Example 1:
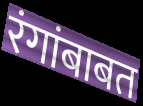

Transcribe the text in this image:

रंगांबाबत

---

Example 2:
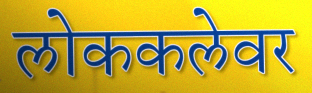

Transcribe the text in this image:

लोककलेवर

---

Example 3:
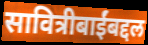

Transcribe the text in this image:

सावित्रीबाईंबद्दल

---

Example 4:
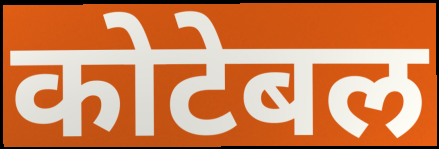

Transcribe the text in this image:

कोटेबल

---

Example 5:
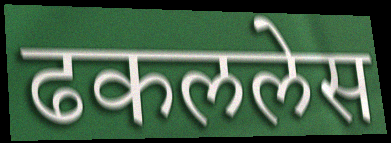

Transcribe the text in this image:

ढकललेस